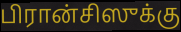
பிரான்சிஸுக்கு